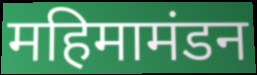
महिमामंडन